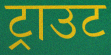
ट्राउट